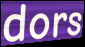
dors